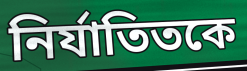
নির্যাতিতকে